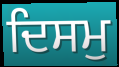
ਦਿਸਮੁ